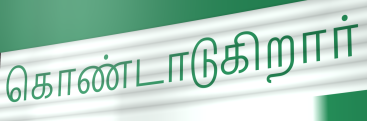
கொண்டாடுகிறார்